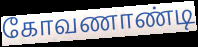
கோவணாண்டி